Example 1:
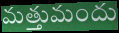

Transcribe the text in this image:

మత్తుమందు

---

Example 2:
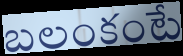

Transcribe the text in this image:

బలంకంటే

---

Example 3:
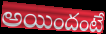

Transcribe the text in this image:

అయిందంటే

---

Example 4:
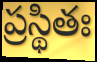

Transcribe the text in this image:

ప్రస్థితః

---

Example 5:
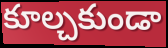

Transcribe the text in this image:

కూల్చకుండా